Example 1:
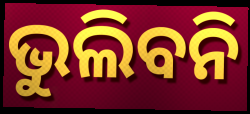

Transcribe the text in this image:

ଭୁଲିବନି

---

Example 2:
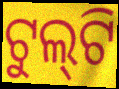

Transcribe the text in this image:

ଟୁଲ୍‌ଟି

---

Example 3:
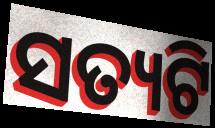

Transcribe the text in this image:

ସତ୍ୟଟି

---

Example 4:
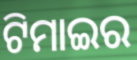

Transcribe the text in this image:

ଟିମାଇର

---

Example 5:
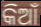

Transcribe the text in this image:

କିଆଁ